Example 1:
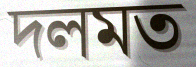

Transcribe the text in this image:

দলমত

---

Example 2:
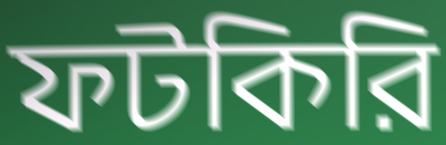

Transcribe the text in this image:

ফটকিরি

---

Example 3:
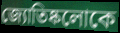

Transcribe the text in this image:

জ্যোতিষ্কলোকে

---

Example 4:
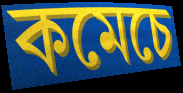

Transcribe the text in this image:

কমেচে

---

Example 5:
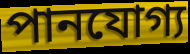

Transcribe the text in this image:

পানযোগ্য